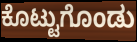
ಕೊಟ್ಟುಗೊಂಡು